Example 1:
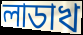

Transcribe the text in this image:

লাডাখ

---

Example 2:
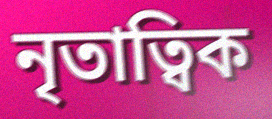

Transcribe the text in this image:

নৃতাত্বিক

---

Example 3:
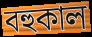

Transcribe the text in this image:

বহুকাল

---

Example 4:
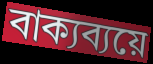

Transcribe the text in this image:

বাক্যব্যয়ে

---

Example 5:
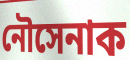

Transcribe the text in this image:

নৌসেনাক